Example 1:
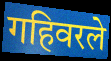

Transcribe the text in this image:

गहिवरले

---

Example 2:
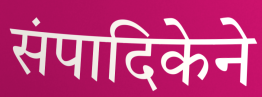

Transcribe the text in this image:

संपादिकेने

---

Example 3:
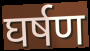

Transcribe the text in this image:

घर्षण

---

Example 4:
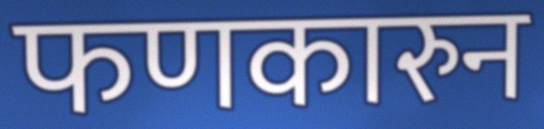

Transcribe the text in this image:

फणकारुन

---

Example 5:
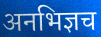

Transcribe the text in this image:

अनभिज्ञच